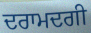
ਦਰਾਮਦਗੀ